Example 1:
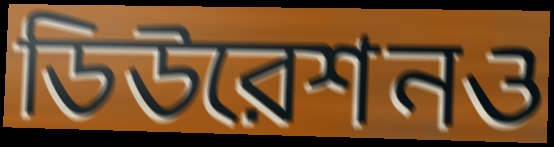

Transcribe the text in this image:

ডিউরেশনও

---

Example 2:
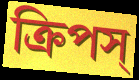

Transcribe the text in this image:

ক্রিপস্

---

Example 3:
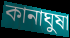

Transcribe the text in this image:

কানাঘুষা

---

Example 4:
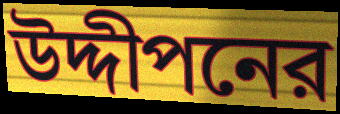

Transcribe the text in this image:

উদ্দীপনের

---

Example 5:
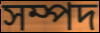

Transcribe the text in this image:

সম্পদ